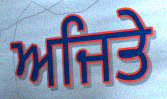
ਅਜਿਤੇ